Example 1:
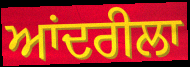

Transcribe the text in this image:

ਆਂਦਰੀਲਾ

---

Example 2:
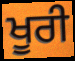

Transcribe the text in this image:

ਖੂਰੀ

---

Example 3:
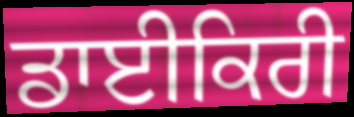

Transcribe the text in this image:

ਡਾਈਕਿਰੀ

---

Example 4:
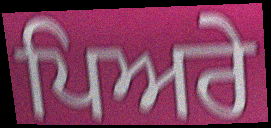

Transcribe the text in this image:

ਪਿਅਰੇ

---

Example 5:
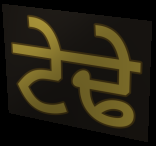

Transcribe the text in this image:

ਟੇਢੇ